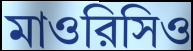
মাওরিসিও